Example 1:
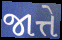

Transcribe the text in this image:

જાત્તે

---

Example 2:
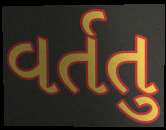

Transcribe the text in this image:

વર્તતુ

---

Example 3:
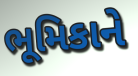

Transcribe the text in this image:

ભૂમિકાને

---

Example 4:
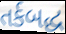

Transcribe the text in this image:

તર્કબદ્ધ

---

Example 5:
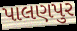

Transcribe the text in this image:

પાલણપુર